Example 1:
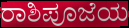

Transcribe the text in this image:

ರಾಶಿಪೂಜೆಯ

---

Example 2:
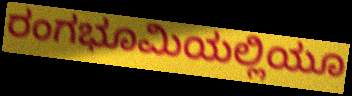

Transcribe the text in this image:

ರಂಗಭೂಮಿಯಲ್ಲಿಯೂ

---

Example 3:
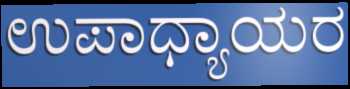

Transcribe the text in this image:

ಉಪಾಧ್ಯಾಯರ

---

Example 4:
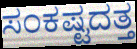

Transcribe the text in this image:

ಸಂಕಷ್ಟದತ್ತ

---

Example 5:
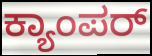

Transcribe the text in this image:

ಕ್ಯಾಂಪರ್